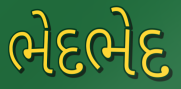
ભેદભેદ